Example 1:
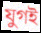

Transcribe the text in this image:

যুগই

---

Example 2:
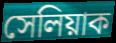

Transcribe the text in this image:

সেলিয়াক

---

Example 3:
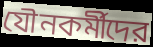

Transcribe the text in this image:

যৌনকর্মীদের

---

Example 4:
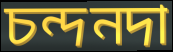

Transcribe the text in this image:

চন্দনদা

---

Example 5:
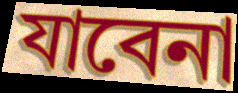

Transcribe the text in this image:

যাবেনা